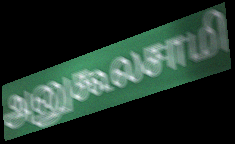
அனுகூலசாமி